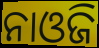
ନାଓଜି